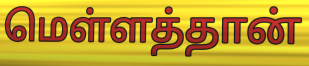
மெள்ளத்தான்